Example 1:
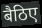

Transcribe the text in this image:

बैठिए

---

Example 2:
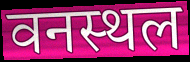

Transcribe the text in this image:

वनस्थल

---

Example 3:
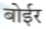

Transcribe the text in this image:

बोईर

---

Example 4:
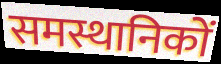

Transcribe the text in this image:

समस्थानिकों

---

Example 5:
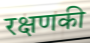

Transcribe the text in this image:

रक्षणकी